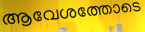
ആവേശത്തോടെ